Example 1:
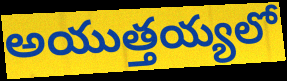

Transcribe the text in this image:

అయుత్తయ్యలో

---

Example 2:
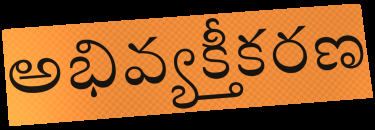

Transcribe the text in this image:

అభివ్యక్తీకరణ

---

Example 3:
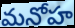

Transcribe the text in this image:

మనోహ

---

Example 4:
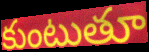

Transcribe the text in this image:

కుంటుతూ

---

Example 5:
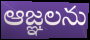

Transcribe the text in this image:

ఆజ్ఞలను